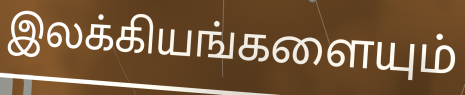
இலக்கியங்களையும்